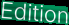
Edition